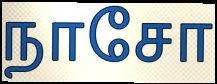
நாசோ